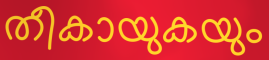
തീകായുകയും